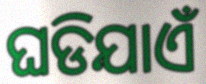
ଘଡିଯାଏଁ